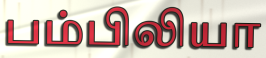
பம்பிலியா